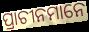
ପ୍ରାଚୀନମାନେ